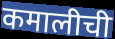
कमालीची